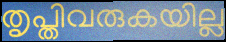
തൃപ്തിവരുകയില്ല